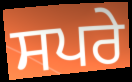
ਸਪਰੇ